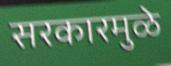
सरकारमुळे